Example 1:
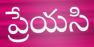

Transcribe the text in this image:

ప్రేయసి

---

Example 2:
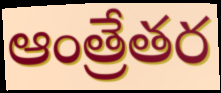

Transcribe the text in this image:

ఆంత్రేతర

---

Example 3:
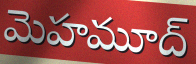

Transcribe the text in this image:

మెహమూద్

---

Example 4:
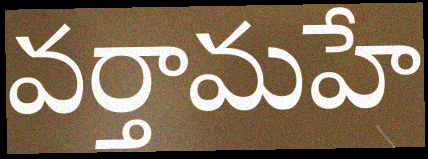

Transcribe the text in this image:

వర్తామహే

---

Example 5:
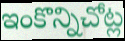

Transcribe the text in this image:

ఇంకొన్నిచోట్ల